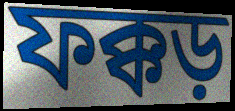
ফক্কড়